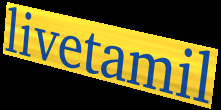
livetamil